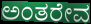
ಅಂತರೇವ